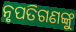
ନୃପତିଗଣଙ୍କୁ